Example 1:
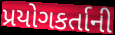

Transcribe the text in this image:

પ્રયોગકર્તાની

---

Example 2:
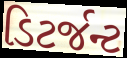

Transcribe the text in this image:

ડિટર્જન્ટ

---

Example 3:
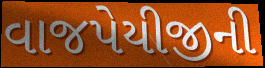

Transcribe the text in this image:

વાજપેયીજીની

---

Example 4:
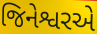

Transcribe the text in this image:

જિનેશ્વરએ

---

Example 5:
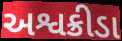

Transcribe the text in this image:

અશ્વક્રીડા